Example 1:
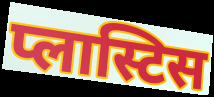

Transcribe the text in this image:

प्लास्टिस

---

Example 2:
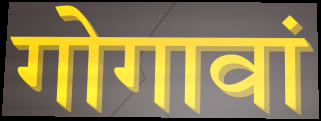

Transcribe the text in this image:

गोगावां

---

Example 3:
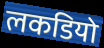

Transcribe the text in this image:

लकडियो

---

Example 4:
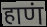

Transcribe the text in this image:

हाणं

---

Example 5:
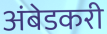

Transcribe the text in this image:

अंबेडकरी